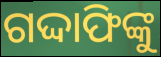
ଗଦ୍ଦାଫିଙ୍କୁ